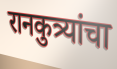
रानकुत्र्यांचा